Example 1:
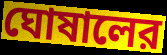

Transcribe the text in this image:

ঘোষালের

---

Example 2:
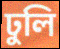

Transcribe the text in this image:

ঢুলি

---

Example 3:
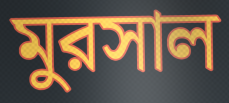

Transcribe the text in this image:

মুরসাল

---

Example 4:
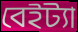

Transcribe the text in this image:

বেইট্যা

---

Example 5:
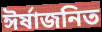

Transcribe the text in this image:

ঈর্ষাজনিত